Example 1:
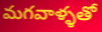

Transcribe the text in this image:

మగవాళ్ళతో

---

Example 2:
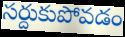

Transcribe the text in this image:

సర్దుకుపోవడం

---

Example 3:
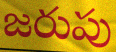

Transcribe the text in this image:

జరుపు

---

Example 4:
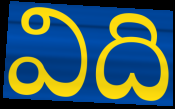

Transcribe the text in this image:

విది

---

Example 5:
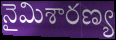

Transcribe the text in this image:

నైమిశారణ్య